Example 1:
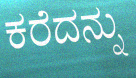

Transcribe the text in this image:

ಕರೆದನ್ನು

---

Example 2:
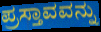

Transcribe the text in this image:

ಪ್ರಸ್ತಾವವನ್ನು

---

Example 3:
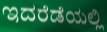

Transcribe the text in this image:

ಇದರೆಡೆಯಲ್ಲಿ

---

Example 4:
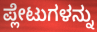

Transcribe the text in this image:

ಪ್ಲೇಟುಗಳನ್ನು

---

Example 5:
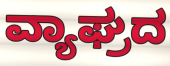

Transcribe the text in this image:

ವ್ಯಾಘ್ರದ